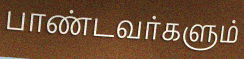
பாண்டவர்களும்